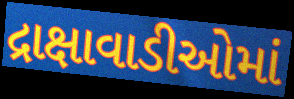
દ્રાક્ષાવાડીઓમાં